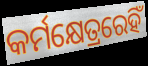
କର୍ମକ୍ଷେତ୍ରରେହିଁ